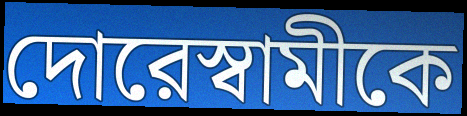
দোরেস্বামীকে